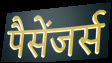
पैसेंजर्स